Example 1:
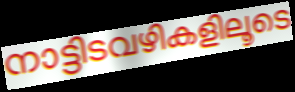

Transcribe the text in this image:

നാട്ടിടവഴികളിലൂടെ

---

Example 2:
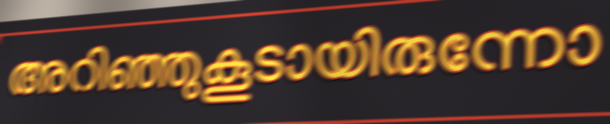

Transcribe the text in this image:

അറിഞ്ഞുകൂടായിരുന്നോ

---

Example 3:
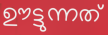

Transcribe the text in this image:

ഊട്ടുന്നത്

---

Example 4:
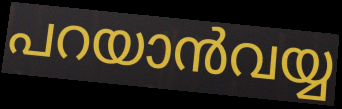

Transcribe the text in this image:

പറയാൻവയ്യ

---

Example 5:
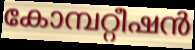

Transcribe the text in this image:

കോമ്പറ്റീഷൻ